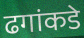
ढगांकडे